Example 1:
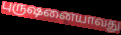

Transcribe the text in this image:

புருஷனையாவது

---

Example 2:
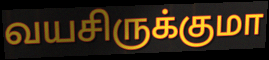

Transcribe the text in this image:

வயசிருக்குமா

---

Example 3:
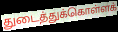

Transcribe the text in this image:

துடைத்துக்கொள்ளக்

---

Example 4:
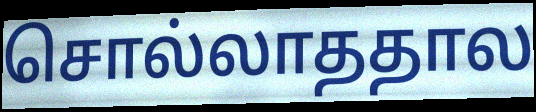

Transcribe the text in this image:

சொல்லாததால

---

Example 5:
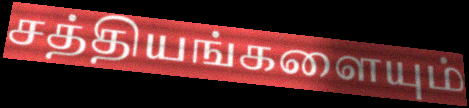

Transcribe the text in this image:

சத்தியங்களையும்